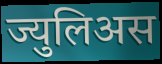
ज्युलिअस